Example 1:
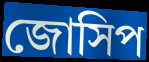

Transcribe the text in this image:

জোসিপ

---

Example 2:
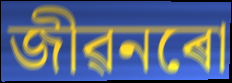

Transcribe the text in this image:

জীৱনৰো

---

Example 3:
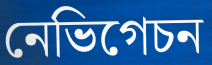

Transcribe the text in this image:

নেভিগেচন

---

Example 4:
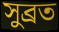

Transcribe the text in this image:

সুব্ৰত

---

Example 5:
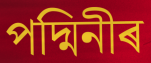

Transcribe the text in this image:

পদ্মিনীৰ